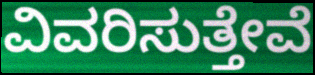
ವಿವರಿಸುತ್ತೇವೆ